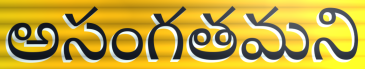
అసంగతమని